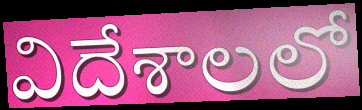
విదేశాలలో